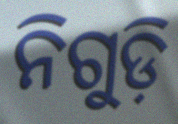
ନିଗୁଡ଼ି